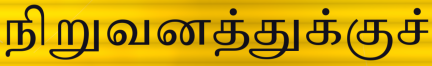
நிறுவனத்துக்குச்